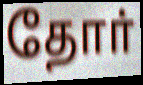
தோர்